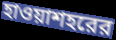
হাওয়াশহরের